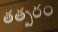
తత్పరం